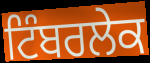
ਟਿੰਬਰਲੇਕ